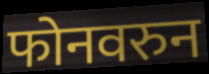
फोनवरुन